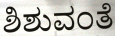
ಶಿಶುವಂತೆ